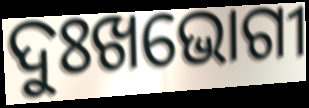
ଦୁଃଖଭୋଗୀ